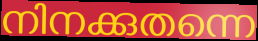
നിനക്കുതന്നെ